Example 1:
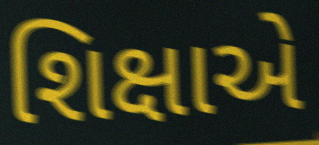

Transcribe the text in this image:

શિક્ષાએ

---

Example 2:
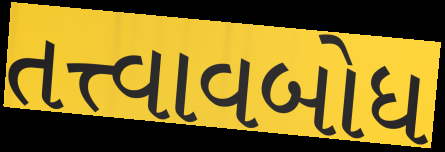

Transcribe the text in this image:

તત્ત્વાવબોધ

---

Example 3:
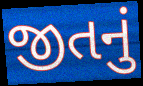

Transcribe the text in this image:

જીતનું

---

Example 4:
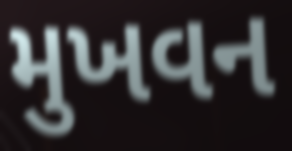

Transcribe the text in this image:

મુખવન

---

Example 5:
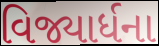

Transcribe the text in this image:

વિજ્યાર્ધના